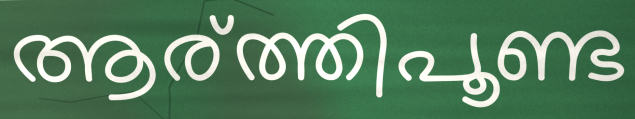
ആര്ത്തിപൂണ്ട